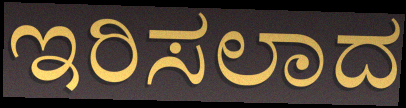
ಇರಿಸಲಾದ